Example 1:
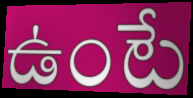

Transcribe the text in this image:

ఉంటే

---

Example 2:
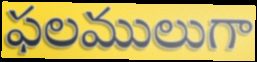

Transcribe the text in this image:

ఫలములుగా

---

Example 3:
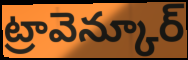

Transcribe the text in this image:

ట్రావెన్కూర్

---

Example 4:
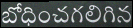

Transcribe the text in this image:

బోధించగలిగిన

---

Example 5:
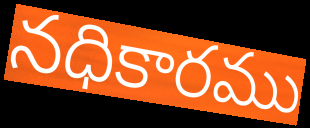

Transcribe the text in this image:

నధికారము